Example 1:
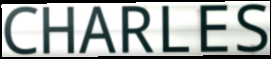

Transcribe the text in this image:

CHARLES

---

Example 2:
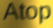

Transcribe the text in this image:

Atop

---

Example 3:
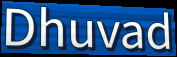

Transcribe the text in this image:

Dhuvad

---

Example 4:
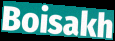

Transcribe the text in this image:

Boisakh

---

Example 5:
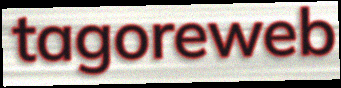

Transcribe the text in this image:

tagoreweb